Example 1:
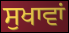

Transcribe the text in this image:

ਸੁਖਾਵਾਂ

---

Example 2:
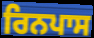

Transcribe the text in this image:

ਰਿਨਪਾਸ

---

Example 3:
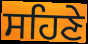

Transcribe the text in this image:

ਸਹਿਣੇ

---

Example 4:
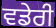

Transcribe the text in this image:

ਵਡੇਰੀ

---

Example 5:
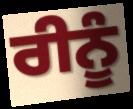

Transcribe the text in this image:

ਰੀਨੂੰ